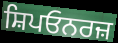
ਸ਼ਿਪਓਨਰਜ਼